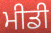
ਮੀਡੀ